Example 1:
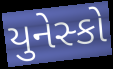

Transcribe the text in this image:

યુનેસ્કો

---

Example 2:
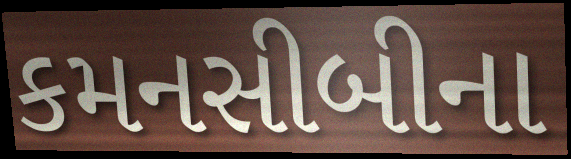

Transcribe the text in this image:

કમનસીબીના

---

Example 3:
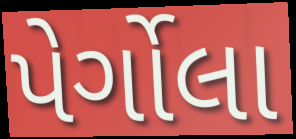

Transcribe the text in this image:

પેર્ગોલા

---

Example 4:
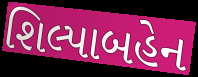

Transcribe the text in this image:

શિલ્પાબહેન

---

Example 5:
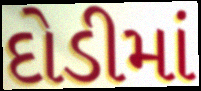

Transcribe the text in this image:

દોડીમાં